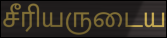
சீரியருடைய